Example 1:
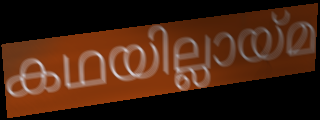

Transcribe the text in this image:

കഥയില്ലായ്മ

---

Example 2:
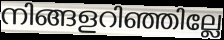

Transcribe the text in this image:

നിങ്ങളറിഞ്ഞില്ലേ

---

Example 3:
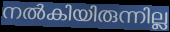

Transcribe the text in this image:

നൽകിയിരുന്നില്ല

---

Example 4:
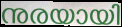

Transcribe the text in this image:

നുരയായി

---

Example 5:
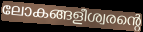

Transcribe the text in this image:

ലോകങ്ങളീശ്വരന്റെ